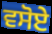
ਵਸੋਏ